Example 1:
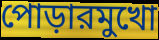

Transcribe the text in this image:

পোড়ারমুখো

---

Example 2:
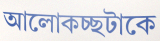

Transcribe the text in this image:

আলোকচ্ছটাকে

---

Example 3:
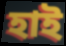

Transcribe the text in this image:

হাই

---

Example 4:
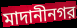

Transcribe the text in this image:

মাদানীনগর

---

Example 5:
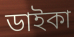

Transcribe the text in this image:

ডাইকা